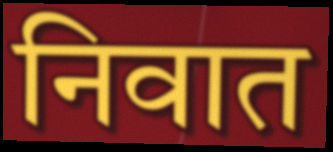
निवात